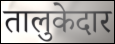
तालुकेदार